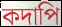
কদাপি